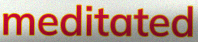
meditated